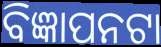
ବିଜ୍ଞାପନଟା